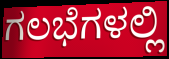
ಗಲಭೆಗಳಲ್ಲಿ